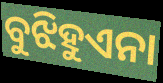
ବୁଝିହୁଏନା